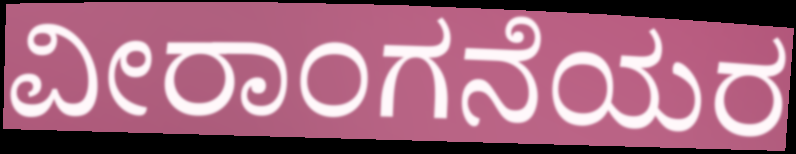
ವೀರಾಂಗನೆಯರ